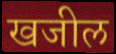
खजील